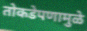
तोकडेपणामुळे